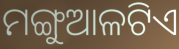
ମଙ୍ଗୁଆଳଟିଏ